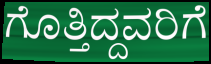
ಗೊತ್ತಿದ್ದವರಿಗೆ